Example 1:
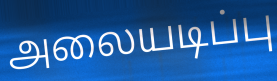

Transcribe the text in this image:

அலையடிப்பு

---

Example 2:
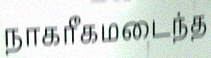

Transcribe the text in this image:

நாகரீகமடைந்த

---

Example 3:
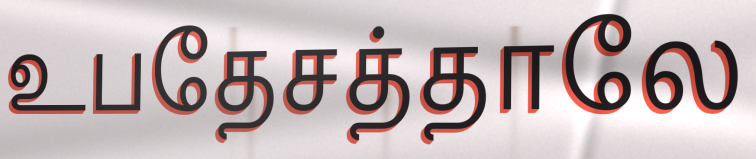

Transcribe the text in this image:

உபதேசத்தாலே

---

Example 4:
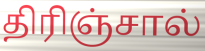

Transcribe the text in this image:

திரிஞ்சால்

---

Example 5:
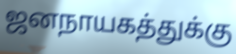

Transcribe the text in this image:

ஜனநாயகத்துக்கு